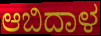
ಆಬಿದಾಳ